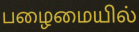
பழைமையில்